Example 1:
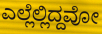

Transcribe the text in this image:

ಎಲ್ಲೆಲ್ಲಿದ್ದವೋ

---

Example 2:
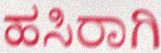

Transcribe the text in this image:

ಹಸಿರಾಗಿ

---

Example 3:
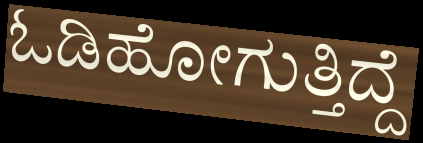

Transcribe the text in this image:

ಓಡಿಹೋಗುತ್ತಿದ್ದೆ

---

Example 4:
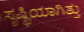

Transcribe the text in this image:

ಸೃಷ್ಟಿಯಾಗಿತ್ತು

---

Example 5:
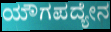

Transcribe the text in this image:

ಯೌಗಪದ್ಯೇನ